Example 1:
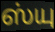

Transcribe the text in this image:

ஸ்யு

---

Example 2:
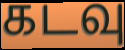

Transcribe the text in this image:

கடவு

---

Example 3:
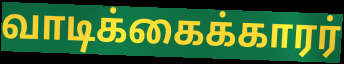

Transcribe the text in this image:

வாடிக்கைக்காரர்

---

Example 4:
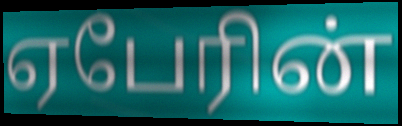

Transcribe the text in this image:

ஏபேரின்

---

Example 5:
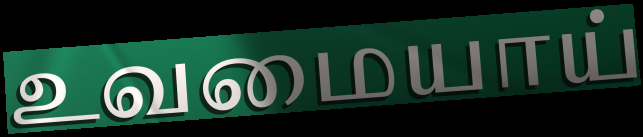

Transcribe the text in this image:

உவமையாய்